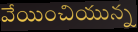
వేయించియున్న